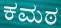
ಕಮಠ